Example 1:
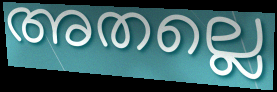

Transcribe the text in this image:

അതല്ലെ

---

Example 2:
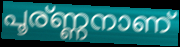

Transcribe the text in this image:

പൂര്ണ്ണനാണ്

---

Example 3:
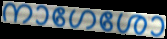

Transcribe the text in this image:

നാഗേശോ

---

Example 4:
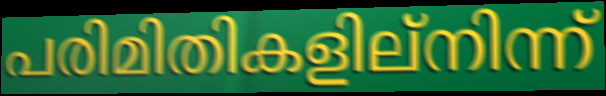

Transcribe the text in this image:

പരിമിതികളില്നിന്ന്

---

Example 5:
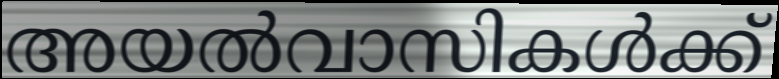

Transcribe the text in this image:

അയൽവാസികൾക്ക്